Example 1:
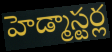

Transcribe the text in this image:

హెడ్మాస్టర్ల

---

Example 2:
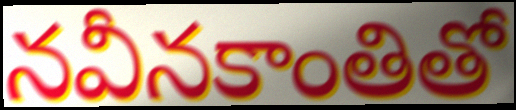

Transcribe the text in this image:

నవీనకాంతితో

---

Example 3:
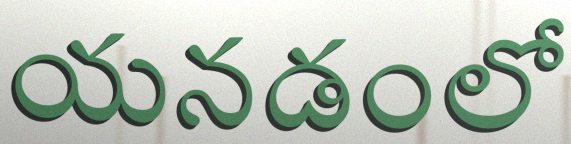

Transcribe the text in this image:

యనడంలో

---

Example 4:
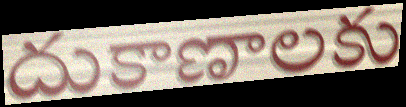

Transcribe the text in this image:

దుకాణాలకు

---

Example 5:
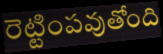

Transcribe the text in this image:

రెట్టింపవుతోంది